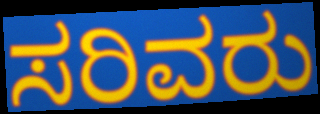
ಸರಿವರು